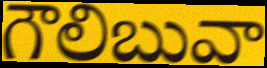
గౌలిబువా